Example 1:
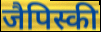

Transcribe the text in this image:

जैपिस्की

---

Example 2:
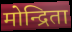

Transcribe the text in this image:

मोन्द्रिता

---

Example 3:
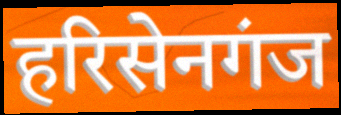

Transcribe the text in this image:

हरिसेनगंज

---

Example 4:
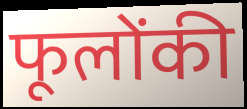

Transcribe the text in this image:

फूलोंकी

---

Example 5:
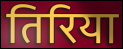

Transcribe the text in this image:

तिरिया